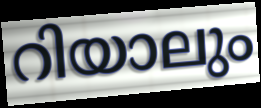
റിയാലും